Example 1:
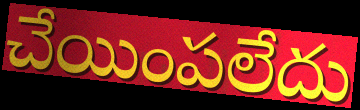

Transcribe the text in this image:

చేయింపలేదు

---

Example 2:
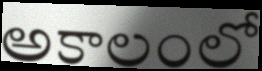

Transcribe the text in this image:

అకాలంలో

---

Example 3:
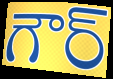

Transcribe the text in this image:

గౌర్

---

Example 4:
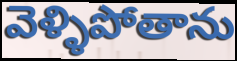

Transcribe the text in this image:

వెళ్ళిపోతాను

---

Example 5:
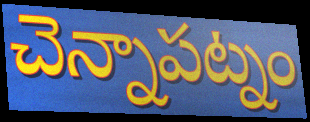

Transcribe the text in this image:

చెన్నాపట్నం